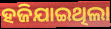
ହଜିଯାଇଥିଲା